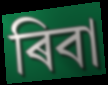
ৰিবা